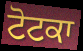
ਟੋਟਕਾ